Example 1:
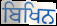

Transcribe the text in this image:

ਬਿਖਿਨ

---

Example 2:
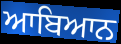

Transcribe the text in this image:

ਆਬਿਆਨ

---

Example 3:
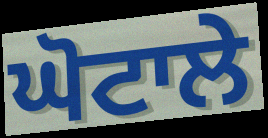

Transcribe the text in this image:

ਘੋਟਾਲੇ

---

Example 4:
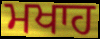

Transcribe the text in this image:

ਮਖਾਹ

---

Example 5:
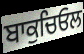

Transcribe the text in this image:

ਬਾਕੁਚਿਓਲ